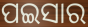
ପଇସାର